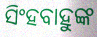
ସିଂହବାହୁଙ୍କ